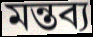
মন্তব্য